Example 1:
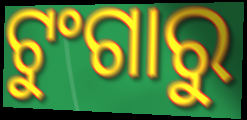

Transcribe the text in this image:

ଟୁଂଗାରୁ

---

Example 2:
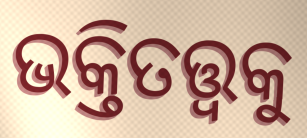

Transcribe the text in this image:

ଭକ୍ତିତତ୍ତ୍ୱକୁ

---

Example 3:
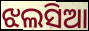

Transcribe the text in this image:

ଝଲସିଆ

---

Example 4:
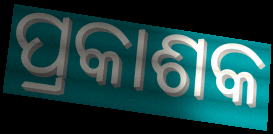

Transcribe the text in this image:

ପ୍ରକାଶକ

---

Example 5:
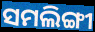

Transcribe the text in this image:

ସମଲିଙ୍ଗୀ